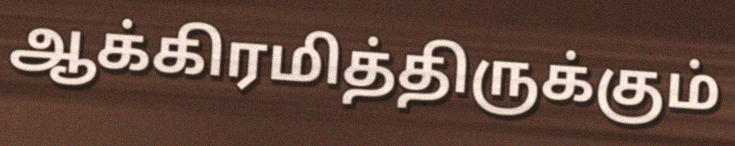
ஆக்கிரமித்திருக்கும்